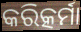
କରିତ୍କର୍ମା